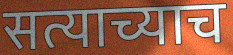
सत्याच्याच